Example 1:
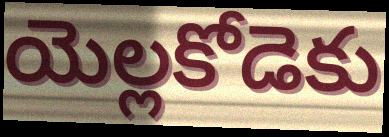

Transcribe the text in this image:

యెల్లకోడెకు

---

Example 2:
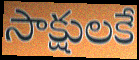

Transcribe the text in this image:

సాక్షులకే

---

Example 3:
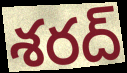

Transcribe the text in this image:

శరద్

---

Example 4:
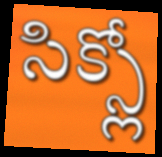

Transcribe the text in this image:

సిక్స్లో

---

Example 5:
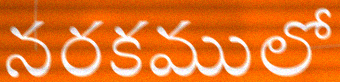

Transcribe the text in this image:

నరకములో